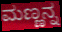
ಮಣ್ಣನ್ನ